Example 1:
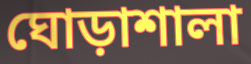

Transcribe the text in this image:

ঘোড়াশালা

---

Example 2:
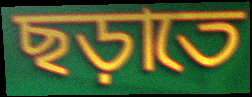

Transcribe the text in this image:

ছড়াতে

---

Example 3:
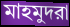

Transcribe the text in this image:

মাহমুদরা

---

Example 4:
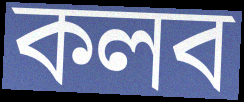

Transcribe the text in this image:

কলব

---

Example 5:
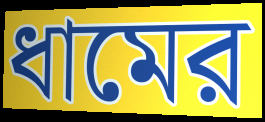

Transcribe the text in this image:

ধামের